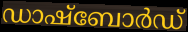
ഡാഷ്ബോർഡ്